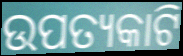
ଉପତ୍ୟକାଟି